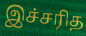
இச்சரித